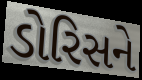
ડોરિસને